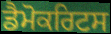
ਡੈਮੋਕਰਿਟਸ